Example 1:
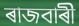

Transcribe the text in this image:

ৰাজবাৰী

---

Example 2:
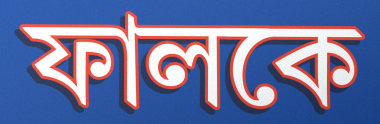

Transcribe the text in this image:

ফালকে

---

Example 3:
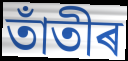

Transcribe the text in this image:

তাঁতীৰ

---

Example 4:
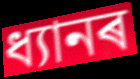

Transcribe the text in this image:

ধ্যানৰ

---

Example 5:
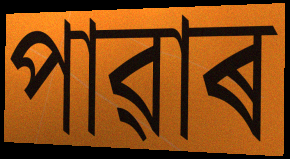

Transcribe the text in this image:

পাৱাৰ